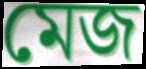
মেজ